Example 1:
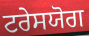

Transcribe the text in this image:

ਟਰੇਸਯੋਗ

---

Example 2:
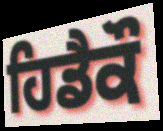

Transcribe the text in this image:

ਹਿਡੈਕੌ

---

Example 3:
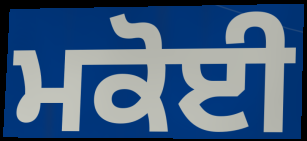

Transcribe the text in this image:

ਮਕੋਈ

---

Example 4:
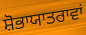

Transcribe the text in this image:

ਸ਼ੋਭਾਯਾਤਰਾਵਾਂ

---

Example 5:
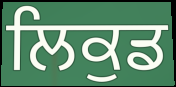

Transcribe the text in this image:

ਲਿਕੁਡ